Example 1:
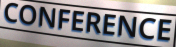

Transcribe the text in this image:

CONFERENCE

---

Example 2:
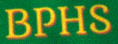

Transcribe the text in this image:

BPHS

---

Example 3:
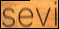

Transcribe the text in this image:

sevi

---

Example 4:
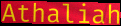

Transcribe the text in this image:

Athaliah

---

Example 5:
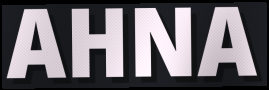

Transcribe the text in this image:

AHNA